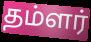
தம்ளர்